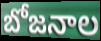
బోజనాల